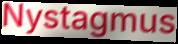
Nystagmus